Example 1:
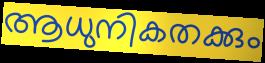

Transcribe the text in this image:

ആധുനികതക്കും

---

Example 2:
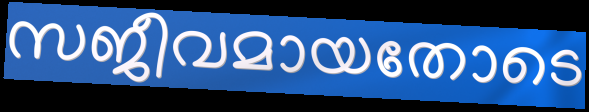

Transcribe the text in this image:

സജീവമായതോടെ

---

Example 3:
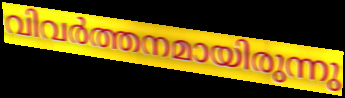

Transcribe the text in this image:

വിവർത്തനമായിരുന്നു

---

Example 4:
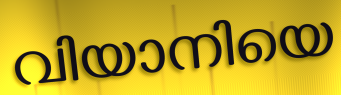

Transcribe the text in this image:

വിയാനിയെ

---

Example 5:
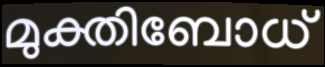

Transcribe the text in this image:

മുക്തിബോധ്